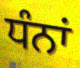
ਧੰਨਾਂ